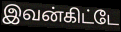
இவன்கிட்டே